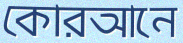
কোরআনে